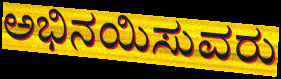
ಅಭಿನಯಿಸುವರು